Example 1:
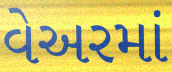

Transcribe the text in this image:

વેઅરમાં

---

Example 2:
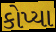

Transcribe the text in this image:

કોપ્યા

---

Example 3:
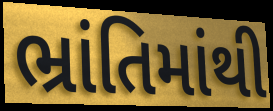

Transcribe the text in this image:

ભ્રાંતિમાંથી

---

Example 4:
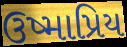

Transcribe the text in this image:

ઉષ્માપ્રિય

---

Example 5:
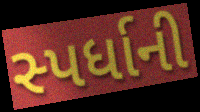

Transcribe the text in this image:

સ્પર્ધાની